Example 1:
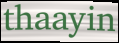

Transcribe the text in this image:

thaayin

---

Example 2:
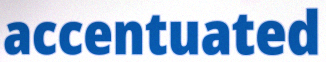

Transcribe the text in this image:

accentuated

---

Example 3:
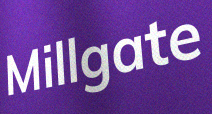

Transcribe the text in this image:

Millgate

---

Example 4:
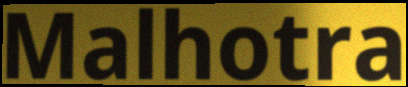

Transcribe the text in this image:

Malhotra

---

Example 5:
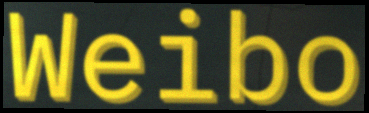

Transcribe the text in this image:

Weibo